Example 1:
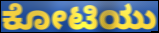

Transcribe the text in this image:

ಕೋಟಿಯು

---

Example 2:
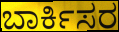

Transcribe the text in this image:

ಬಾರ್ಕಿಸರ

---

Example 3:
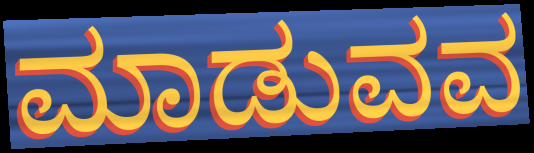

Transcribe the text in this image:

ಮಾಡುವವ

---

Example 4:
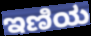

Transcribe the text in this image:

ಇಣಿಯ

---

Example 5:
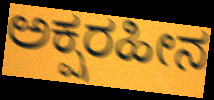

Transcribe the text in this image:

ಅಕ್ಷರಹೀನ